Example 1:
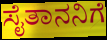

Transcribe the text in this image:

ಸೈತಾನನಿಗೆ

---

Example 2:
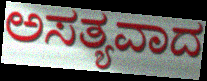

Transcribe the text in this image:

ಅಸತ್ಯವಾದ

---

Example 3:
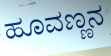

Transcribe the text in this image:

ಹೂವಣ್ಣನ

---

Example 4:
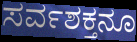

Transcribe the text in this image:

ಸರ್ವಶಕ್ತನೂ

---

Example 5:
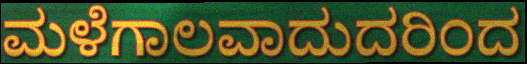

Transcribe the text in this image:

ಮಳೆಗಾಲವಾದುದರಿಂದ